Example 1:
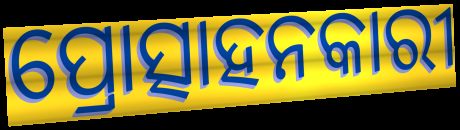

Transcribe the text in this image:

ପ୍ରୋତ୍ସାହନକାରୀ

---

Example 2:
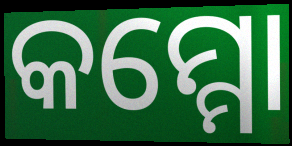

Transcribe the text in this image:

କମ୍ମୋ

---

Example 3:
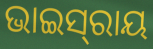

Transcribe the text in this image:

ଭାଇସ୍‍ରାୟ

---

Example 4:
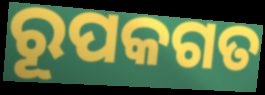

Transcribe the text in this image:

ରୂପକଗତ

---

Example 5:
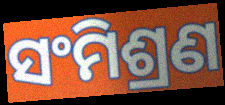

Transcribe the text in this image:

ସଂମିଶ୍ରଣ